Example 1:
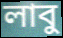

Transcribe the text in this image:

লাবু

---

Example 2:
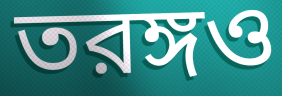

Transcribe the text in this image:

তরঙ্গও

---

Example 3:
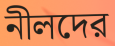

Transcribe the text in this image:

নীলদের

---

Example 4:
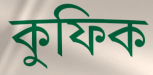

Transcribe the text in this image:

কুফিক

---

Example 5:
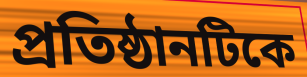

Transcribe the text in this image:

প্রতিষ্ঠানটিকে